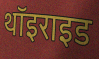
थॉइराइड